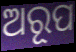
ଅରୂପ